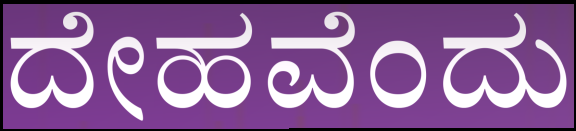
ದೇಹವೆಂದು